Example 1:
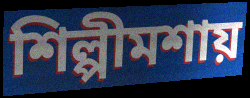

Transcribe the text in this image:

শিল্পীমশায়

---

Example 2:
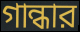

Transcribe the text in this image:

গান্ধার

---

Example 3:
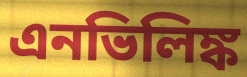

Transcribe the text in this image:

এনভিলিঙ্ক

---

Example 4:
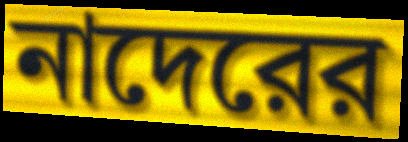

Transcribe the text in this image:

নাদেরের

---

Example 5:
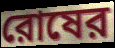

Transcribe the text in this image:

রোষের